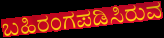
ಬಹಿರಂಗಪಡಿಸಿರುವ